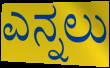
ಎನ್ನಲು